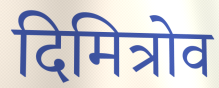
दिमित्रोव